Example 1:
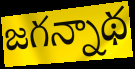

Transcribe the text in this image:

జగన్నాథ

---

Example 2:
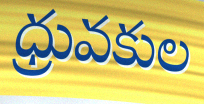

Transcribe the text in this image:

ధ్రువకుల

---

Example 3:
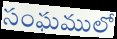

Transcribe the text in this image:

సంఘములో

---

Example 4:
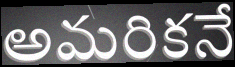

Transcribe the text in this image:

అమరికనే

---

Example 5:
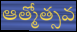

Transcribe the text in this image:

ఆత్మోత్సవ